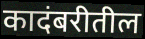
कादंबरीतील